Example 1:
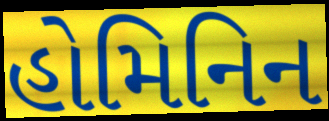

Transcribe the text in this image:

હોમિનિન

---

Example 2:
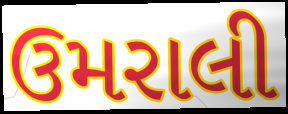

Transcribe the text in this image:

ઉમરાલી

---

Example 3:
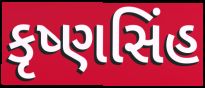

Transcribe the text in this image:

કૃષ્ણસિંહ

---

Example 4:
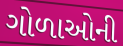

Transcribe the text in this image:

ગોળાઓની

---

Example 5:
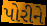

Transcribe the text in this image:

પોરીને